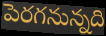
పెరగనున్నది